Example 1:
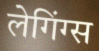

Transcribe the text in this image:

लेगिंग्स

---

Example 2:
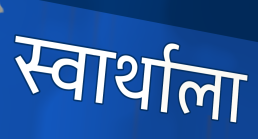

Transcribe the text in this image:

स्वार्थाला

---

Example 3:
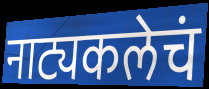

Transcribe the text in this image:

नाट्यकलेचं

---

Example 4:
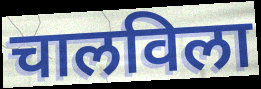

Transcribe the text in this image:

चालविला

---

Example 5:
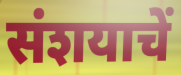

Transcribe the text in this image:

संशयाचें